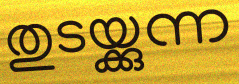
തുടയ്ക്കുന്ന